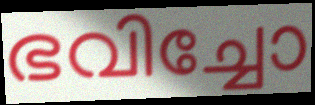
ഭവിച്ചോ